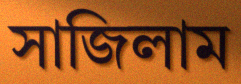
সাজিলাম